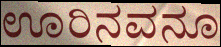
ಊರಿನವನೂ